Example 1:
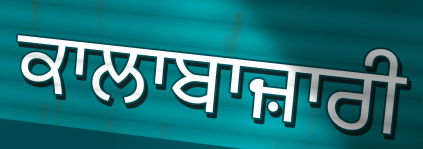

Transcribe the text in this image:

ਕਾਲਾਬਾਜ਼ਾਰੀ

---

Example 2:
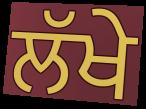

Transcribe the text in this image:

ਲੱਖੇ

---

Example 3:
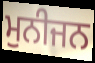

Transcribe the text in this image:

ਮੁਨੀਜਨ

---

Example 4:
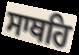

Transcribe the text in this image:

ਸਾਥਹਿ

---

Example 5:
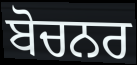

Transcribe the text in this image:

ਬੋਚਨਰ